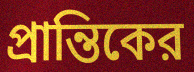
প্রান্তিকের